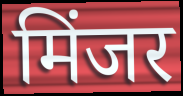
मिंजर